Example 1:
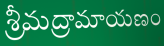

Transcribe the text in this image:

శ్రీమద్రామాయణం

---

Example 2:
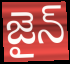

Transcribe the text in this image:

జైన్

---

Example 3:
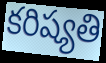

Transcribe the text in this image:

కరిష్యతి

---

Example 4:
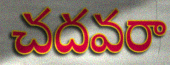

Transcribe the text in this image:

చదవరా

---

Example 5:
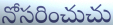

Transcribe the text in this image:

నోసరించుచు